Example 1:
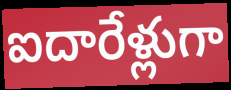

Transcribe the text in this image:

ఐదారేళ్లుగా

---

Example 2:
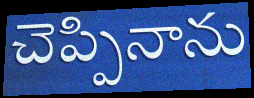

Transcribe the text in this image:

చెప్పినాను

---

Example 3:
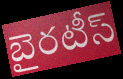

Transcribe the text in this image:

బైరటీస్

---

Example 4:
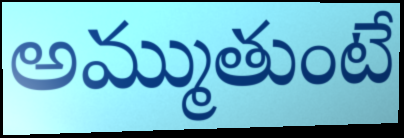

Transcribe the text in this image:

అమ్ముతుంటే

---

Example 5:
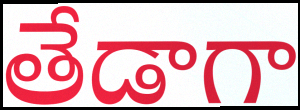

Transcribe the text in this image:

తేడాగా